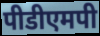
पीडीएमपी